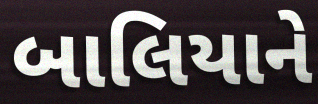
બાલિયાને